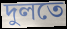
দুলতে